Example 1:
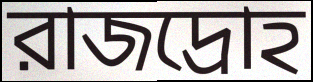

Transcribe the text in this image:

রাজদ্রোহ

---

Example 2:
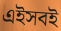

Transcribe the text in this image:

এইসবই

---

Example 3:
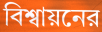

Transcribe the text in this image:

বিশ্বায়নের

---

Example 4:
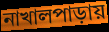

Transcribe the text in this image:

নাখালপাড়ায়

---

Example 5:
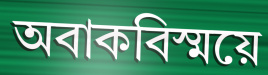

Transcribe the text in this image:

অবাকবিস্ময়ে